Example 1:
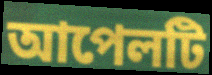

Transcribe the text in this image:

আপেলটি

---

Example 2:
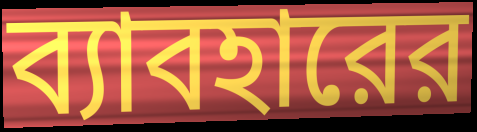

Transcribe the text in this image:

ব্যাবহারের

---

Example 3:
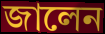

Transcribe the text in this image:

জালেন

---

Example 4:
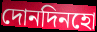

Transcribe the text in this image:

দোনদিনহো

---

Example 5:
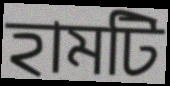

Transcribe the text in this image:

হামটি